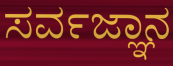
ಸರ್ವಜ್ಞಾನ